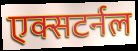
एक्सटर्नल